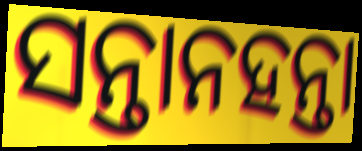
ସନ୍ତାନହନ୍ତା